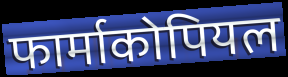
फार्माकोपियल